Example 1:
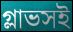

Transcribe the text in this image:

গ্লাভসই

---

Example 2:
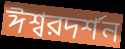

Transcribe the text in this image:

ঈশ্বরদর্শন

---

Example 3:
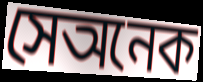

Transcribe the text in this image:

সেঅনেক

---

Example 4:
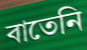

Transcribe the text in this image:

বাতেনি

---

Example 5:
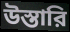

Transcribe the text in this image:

উস্তারি